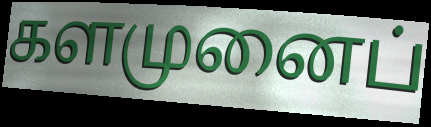
களமுனைப்